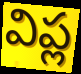
విప్ల